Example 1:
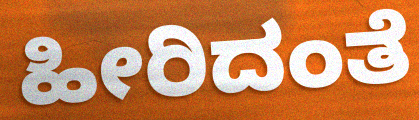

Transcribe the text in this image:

ಹೀರಿದಂತೆ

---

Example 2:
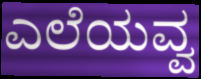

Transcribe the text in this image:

ಎಲೆಯವ್ವ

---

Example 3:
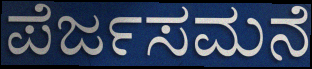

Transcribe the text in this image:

ಪೆರ್ಜಸಮನೆ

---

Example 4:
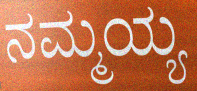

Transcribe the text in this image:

ನಮ್ಮಯ್ಯ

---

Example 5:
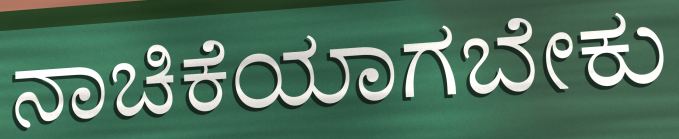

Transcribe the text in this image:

ನಾಚಿಕೆಯಾಗಬೇಕು